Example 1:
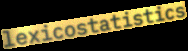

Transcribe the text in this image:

lexicostatistics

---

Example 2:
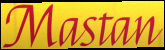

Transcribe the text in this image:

Mastan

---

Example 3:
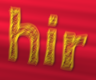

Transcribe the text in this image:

hir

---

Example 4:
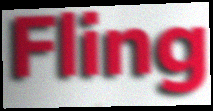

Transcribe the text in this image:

Fling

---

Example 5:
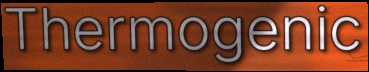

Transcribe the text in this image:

Thermogenic